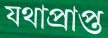
যথাপ্ৰাপ্ত